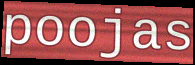
poojas